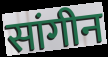
सांगीन